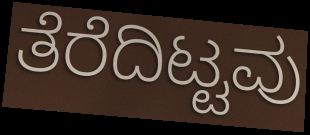
ತೆರೆದಿಟ್ಟವು